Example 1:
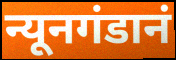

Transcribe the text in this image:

न्यूनगंडानं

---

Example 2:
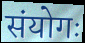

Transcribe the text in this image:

संयोगः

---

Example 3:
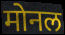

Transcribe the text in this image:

मोनल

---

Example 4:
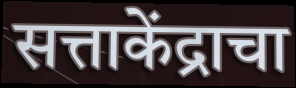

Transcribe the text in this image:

सत्ताकेंद्राचा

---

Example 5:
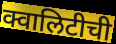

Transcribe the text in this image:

क्वालिटीची